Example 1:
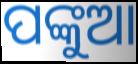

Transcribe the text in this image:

ପଙ୍କୁଆ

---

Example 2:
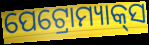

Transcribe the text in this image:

ପେଟ୍ରୋମ୍ୟାକ୍‌ସ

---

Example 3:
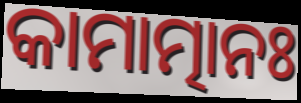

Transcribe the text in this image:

କାମାତ୍ମାନଃ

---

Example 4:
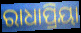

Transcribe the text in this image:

ରାଧାପ୍ରିୟା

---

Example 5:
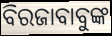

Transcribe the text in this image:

ବିରଜାବାବୁଙ୍କ